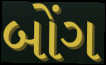
બોંગ